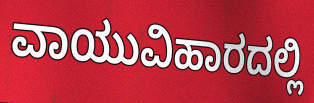
ವಾಯುವಿಹಾರದಲ್ಲಿ